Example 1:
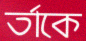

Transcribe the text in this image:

র্তাকে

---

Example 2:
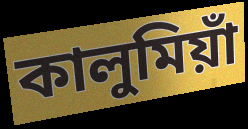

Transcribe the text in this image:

কালুমিয়াঁ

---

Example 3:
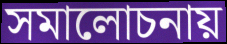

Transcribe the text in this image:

সমালোচনায়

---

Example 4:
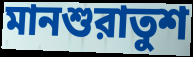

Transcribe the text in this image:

মানশুরাতুশ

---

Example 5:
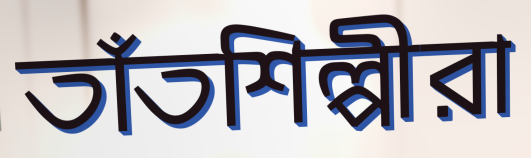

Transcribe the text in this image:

তাঁতশিল্পীরা